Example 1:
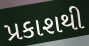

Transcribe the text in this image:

પ્રકાશથી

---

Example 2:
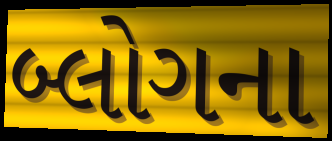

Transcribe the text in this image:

બ્લોગના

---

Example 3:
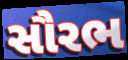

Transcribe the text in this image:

સૌરભ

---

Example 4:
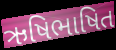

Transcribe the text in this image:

ઋષિભાષિત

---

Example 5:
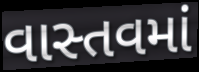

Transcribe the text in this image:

વાસ્તવમાં